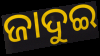
ଜାଦୁଇ